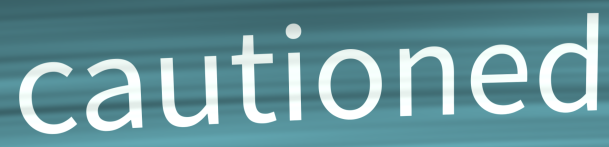
cautioned